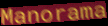
Manorama